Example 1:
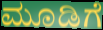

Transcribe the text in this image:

ಮೂಡಿಗೆ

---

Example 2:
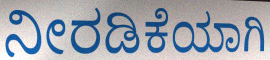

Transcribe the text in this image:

ನೀರಡಿಕೆಯಾಗಿ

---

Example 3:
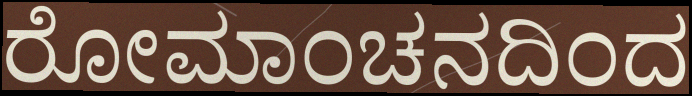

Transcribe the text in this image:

ರೋಮಾಂಚನದಿಂದ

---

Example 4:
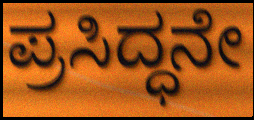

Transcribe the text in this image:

ಪ್ರಸಿದ್ಧನೇ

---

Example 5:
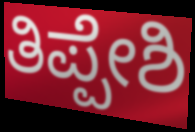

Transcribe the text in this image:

ತಿಪ್ಪೇಶಿ